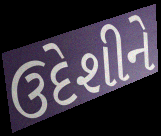
ઉદેશીને